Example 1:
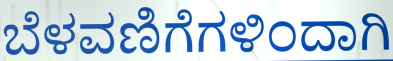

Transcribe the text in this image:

ಬೆಳವಣಿಗೆಗಳಿಂದಾಗಿ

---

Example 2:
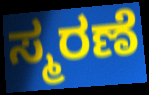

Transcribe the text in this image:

ಸ್ಮರಣೆ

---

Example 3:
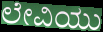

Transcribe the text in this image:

ಲೇವಿಯು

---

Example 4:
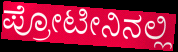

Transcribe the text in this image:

ಪ್ರೋಟೀನಿನಲ್ಲಿ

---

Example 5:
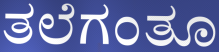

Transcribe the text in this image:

ತಲೆಗಂತೂ